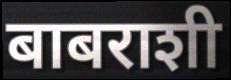
बाबराशी